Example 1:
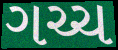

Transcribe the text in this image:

ગચ્ચ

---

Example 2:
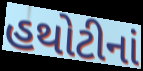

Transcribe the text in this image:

હથોટીનાં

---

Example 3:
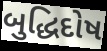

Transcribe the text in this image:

બુદ્ધિદોષ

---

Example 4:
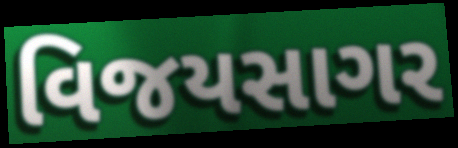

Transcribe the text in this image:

વિજયસાગર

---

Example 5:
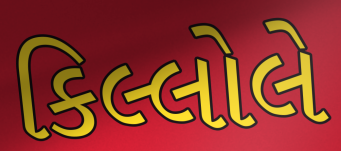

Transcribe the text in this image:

કિલ્લોલે